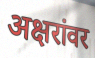
अक्षरांवर